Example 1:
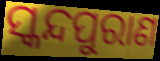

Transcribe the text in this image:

ସ୍କନ୍ଦପୁରାଣ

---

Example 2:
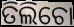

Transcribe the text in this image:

ତିଲିଚୋ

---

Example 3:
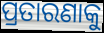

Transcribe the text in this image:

ପ୍ରତାରଣାକୁ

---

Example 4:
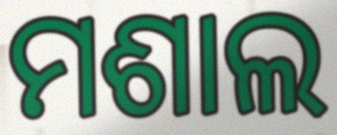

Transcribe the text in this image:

ମଶାଲ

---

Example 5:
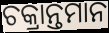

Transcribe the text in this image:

ଚକ୍ରାନ୍ତମାନ